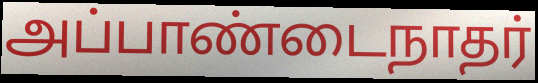
அப்பாண்டைநாதர்